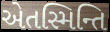
એતસ્મિન્તિ